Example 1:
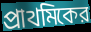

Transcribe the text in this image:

প্রাথমিকের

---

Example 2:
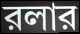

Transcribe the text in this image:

রলার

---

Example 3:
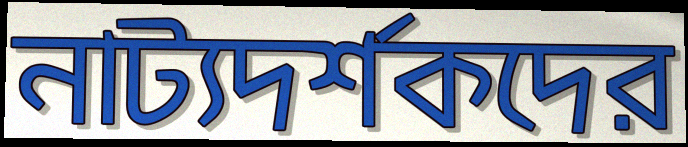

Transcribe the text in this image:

নাট্যদর্শকদের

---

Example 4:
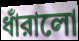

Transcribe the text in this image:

ধাঁরালো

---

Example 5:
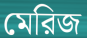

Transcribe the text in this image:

মেরিজ